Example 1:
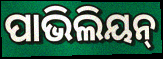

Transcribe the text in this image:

ପାଭିଲିୟନ୍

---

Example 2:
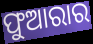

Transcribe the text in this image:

ଫୁଆରାର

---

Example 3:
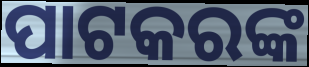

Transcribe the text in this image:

ପାଟକରଙ୍କ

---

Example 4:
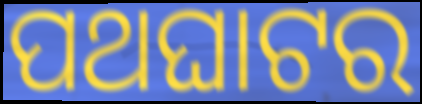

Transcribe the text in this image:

ପଥଘାଟର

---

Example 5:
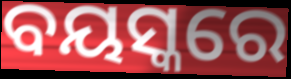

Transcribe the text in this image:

ବୟସ୍କରେ